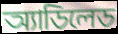
অ্যাডিলেড